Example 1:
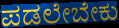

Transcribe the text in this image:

ಪಡಲೇಬೇಕು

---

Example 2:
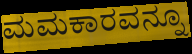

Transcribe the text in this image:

ಮಮಕಾರವನ್ನೂ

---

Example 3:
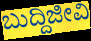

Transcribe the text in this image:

ಬುದ್ದಿಜೀವಿ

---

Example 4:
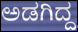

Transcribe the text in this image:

ಅಡಗಿದ್ದ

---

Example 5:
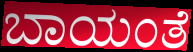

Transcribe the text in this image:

ಬಾಯಂತೆ